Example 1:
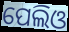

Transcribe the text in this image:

ପେଲିଓ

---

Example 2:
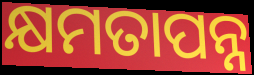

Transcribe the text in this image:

କ୍ଷମତାପନ୍ନ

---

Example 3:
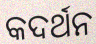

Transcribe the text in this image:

କଦର୍ଥନ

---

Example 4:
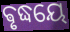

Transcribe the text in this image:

ଵୃଦ୍ଧୟେ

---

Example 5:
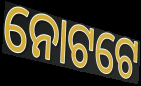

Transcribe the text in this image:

ନୋଟଟେ